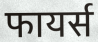
फायर्स